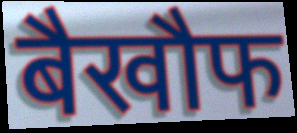
बैखौफ